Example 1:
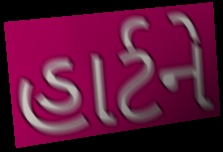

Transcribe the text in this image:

હાર્ટને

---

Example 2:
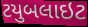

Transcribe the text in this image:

ટયુબલાઇટ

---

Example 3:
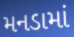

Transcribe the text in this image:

મનડામાં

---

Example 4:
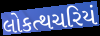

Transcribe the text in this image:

લોકત્થચરિયં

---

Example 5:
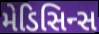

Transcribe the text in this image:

મેડિસિન્સ